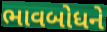
ભાવબોધને